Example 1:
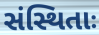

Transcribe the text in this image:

સંસ્થિતાઃ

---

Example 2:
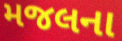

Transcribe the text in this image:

મજલના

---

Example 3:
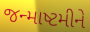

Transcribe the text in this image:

જન્માષ્ટમીને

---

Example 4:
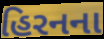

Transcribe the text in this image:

હિરનના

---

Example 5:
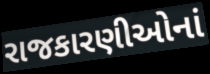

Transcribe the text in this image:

રાજકારણીઓનાં